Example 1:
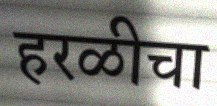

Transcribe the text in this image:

हरळीचा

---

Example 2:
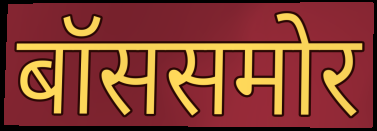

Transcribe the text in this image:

बॉससमोर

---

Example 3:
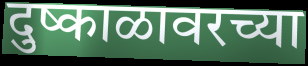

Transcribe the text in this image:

दुष्काळावरच्या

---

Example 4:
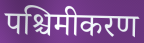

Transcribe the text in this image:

पश्चिमीकरण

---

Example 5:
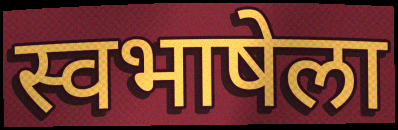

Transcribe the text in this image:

स्वभाषेला